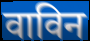
वाविन